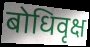
बोधिवृक्ष